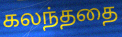
கலந்ததை